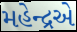
મહેન્દ્રએ